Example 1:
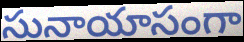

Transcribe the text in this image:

సునాయాసంగా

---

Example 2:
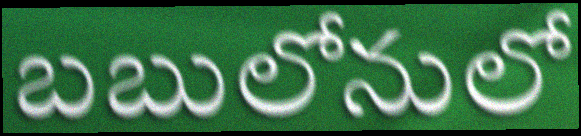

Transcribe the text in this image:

బబులోనులో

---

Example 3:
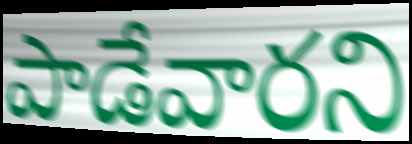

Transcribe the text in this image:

పాడేవారని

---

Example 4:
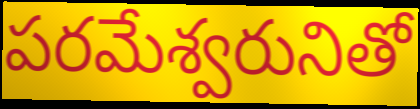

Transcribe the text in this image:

పరమేశ్వరునితో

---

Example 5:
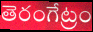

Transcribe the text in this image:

తెరంగేట్రం